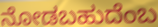
ನೋಡಬಹುದೆಂಬ